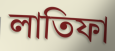
লাতিফা